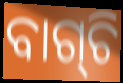
ବାଗ୍‌ଚି